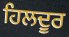
ਹਿਲਦੂਰ